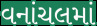
વનાંચલમાં